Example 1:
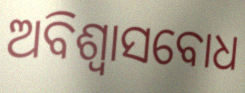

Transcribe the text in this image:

ଅବିଶ୍ୱାସବୋଧ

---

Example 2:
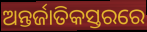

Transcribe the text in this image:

ଅନ୍ତର୍ଜାତିକସ୍ତରରେ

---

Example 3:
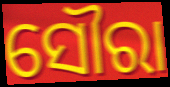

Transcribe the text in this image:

ସୌରା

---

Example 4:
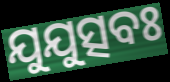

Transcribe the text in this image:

ଯୁଯୁତ୍ସବଃ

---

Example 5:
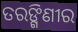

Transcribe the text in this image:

ତରଙ୍ଗିଣୀର